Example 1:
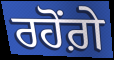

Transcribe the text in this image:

ਰਹੋਂਗ਼ੇ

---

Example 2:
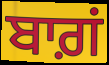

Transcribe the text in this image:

ਬਾਗ਼ਂ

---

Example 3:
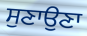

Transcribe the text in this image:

ਸੁਣਾਉਣਾ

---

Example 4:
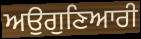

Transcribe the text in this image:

ਅਉਗੁਣਿਆਰੀ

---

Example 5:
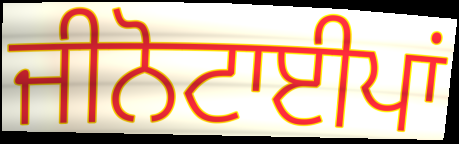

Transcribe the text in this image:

ਜੀਨੋਟਾਈਪਾਂ